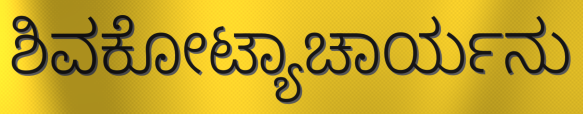
ಶಿವಕೋಟ್ಯಾಚಾರ್ಯನು